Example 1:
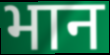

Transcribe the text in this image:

भान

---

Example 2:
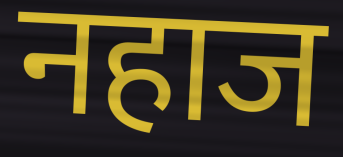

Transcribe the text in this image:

नहाज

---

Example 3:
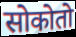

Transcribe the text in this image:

सोकोतो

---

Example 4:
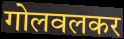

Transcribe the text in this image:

गोलवलकर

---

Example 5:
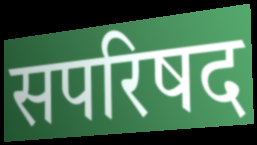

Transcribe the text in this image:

सपरिषद